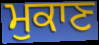
ਮੁਕਾਣ